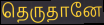
தெருதானே